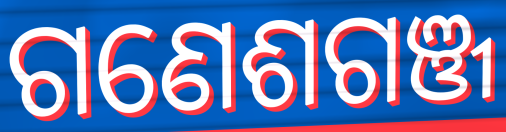
ଗଣେଶଗଞ୍ଜ